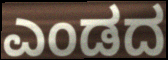
ಎಂಡದ